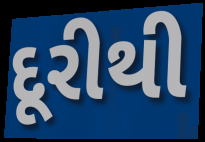
દૂરીથી